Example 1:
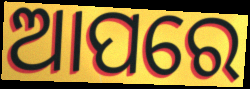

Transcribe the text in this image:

ଆପରେ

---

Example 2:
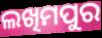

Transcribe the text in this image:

ଲଖିମପୁର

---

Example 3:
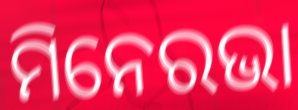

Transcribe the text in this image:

ମିନେରଭା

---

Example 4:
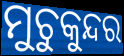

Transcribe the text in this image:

ମୁଚୁକୁନ୍ଦର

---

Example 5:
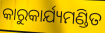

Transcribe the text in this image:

କାରୁକାର୍ଯ୍ୟମଣ୍ଡିତ